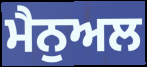
ਮੈਨੁਅਲ